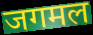
जगमल